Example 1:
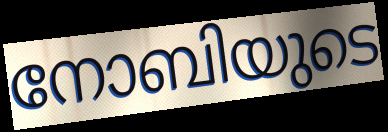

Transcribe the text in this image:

നോബിയുടെ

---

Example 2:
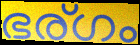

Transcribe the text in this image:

ഭര്ഗം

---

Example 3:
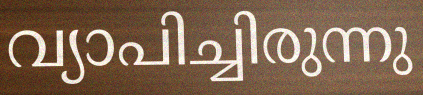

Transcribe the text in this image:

വ്യാപിച്ചിരുന്നു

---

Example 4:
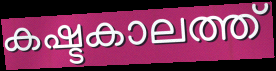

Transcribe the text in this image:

കഷ്ടകാലത്ത്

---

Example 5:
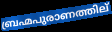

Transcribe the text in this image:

ബ്രഹ്മപുരാണത്തില്